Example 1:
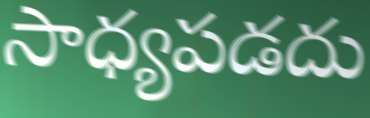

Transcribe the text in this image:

సాధ్యపడదు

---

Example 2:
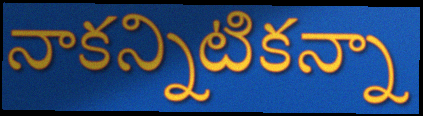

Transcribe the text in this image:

నాకన్నిటికన్నా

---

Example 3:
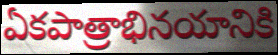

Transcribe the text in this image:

ఏకపాత్రాభినయానికి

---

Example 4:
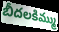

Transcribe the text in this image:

బీదలకిమ్ము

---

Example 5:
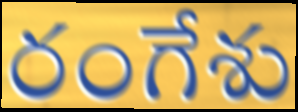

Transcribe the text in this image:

రంగేశు